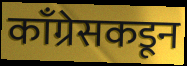
काँग्रेसकडून